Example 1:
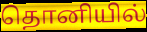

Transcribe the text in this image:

தொனியில்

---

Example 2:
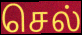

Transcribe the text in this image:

செல்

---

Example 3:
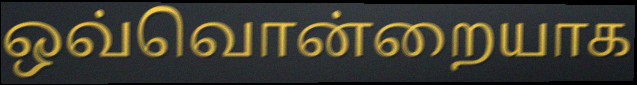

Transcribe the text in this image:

ஒவ்வொன்றையாக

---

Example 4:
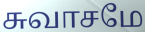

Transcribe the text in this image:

சுவாசமே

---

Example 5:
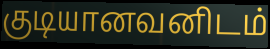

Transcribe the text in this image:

குடியானவனிடம்